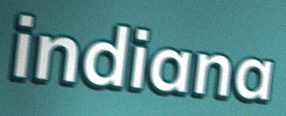
indiana